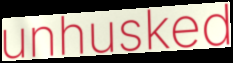
unhusked